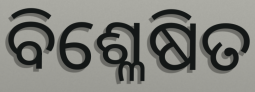
ବିଶ୍ଳେଷିତ